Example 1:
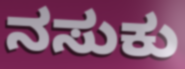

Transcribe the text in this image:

ನಸುಕು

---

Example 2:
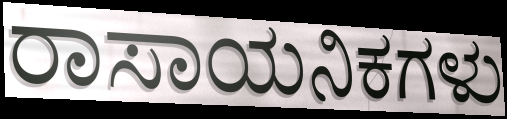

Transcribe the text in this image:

ರಾಸಾಯನಿಕಗಳು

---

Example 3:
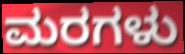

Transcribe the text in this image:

ಮರಗಳು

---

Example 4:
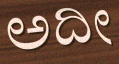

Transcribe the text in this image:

ಅದೀ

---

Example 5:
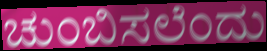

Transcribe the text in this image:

ಚುಂಬಿಸಲೆಂದು